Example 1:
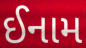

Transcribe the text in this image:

ઈનામ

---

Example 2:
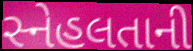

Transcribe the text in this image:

સ્નેહલતાની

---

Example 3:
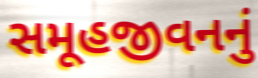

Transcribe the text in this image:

સમૂહજીવનનું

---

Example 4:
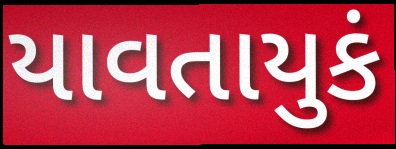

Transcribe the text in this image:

યાવતાયુકં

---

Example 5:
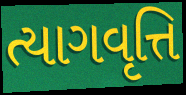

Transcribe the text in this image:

ત્યાગવૃત્તિ